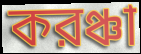
করঞ্চা